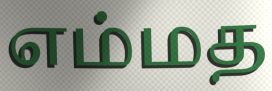
எம்மத